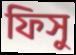
ফিসু